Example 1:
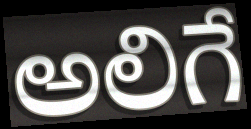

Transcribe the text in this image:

అలిగే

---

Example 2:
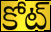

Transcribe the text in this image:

కోట్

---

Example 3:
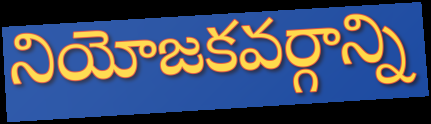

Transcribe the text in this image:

నియోజకవర్గాన్ని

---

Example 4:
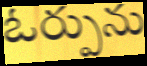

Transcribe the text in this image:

ఓర్పును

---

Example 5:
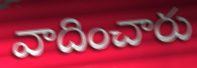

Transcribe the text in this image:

వాదించారు